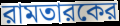
রামতারকের